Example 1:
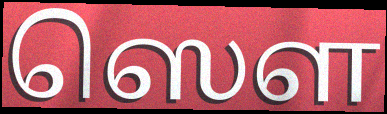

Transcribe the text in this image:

ஸௌ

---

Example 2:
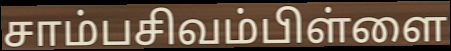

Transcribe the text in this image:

சாம்பசிவம்பிள்ளை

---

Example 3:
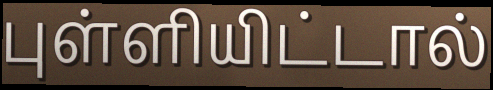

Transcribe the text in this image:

புள்ளியிட்டால்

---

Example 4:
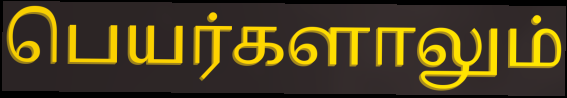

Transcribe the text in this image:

பெயர்களாலும்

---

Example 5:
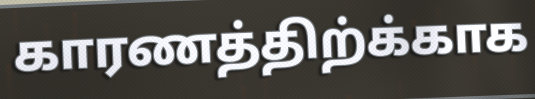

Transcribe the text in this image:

காரணத்திற்க்காக